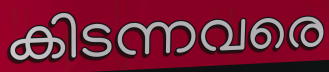
കിടന്നവരെ